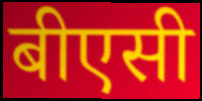
बीएसी